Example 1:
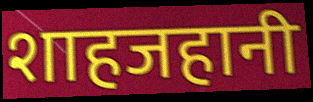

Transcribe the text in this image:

शाहजहानी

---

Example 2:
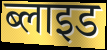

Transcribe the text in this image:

ब्लाइड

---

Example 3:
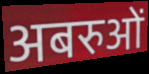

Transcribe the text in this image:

अबरुओं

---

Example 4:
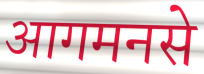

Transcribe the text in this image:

आगमनसे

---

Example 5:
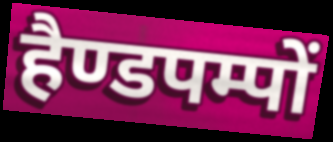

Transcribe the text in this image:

हैण्डपम्पों